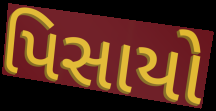
પિસાયો